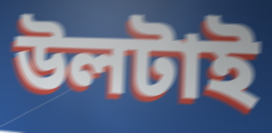
উলটাই